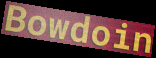
Bowdoin